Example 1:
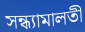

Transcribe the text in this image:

সন্ধ্যামালতী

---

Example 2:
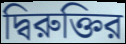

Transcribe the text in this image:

দ্বিরুক্তির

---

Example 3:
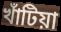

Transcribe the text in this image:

খাঁটিয়া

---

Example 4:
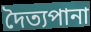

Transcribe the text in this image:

দৈত্যপানা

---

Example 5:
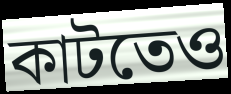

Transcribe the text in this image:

কাটতেও